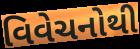
વિવેચનોથી